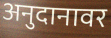
अनुदानावर